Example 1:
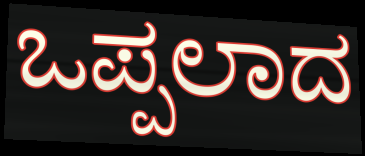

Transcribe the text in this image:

ಒಪ್ಪಲಾದ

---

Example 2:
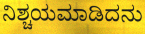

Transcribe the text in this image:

ನಿಶ್ಚಯಮಾಡಿದನು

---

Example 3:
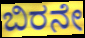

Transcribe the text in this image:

ಬಿರನೇ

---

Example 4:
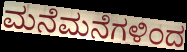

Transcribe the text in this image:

ಮನೆಮನೆಗಳಿಂದ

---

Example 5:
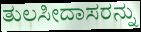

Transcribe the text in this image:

ತುಲಸೀದಾಸರನ್ನು